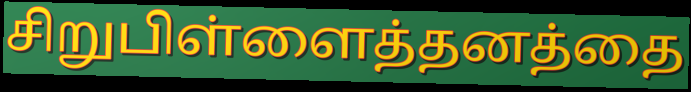
சிறுபிள்ளைத்தனத்தை